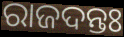
ରାଜଦନ୍ତଃ